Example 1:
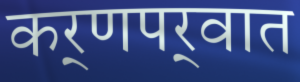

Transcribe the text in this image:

कर्णपर्वात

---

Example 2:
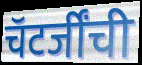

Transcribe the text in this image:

चॅटर्जींची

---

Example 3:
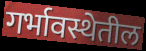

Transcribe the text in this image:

गर्भावस्थेतील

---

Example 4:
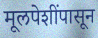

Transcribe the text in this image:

मूलपेशींपासून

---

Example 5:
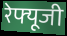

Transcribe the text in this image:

रेफ्यूजी